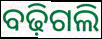
ବଢ଼ିଗଲି